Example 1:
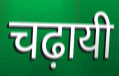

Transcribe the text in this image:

चढ़ायी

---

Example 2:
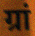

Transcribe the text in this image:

ग्रां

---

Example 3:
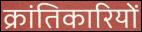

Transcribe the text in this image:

क्रांतिकारियों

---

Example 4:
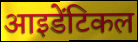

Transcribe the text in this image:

आइडेंटिकल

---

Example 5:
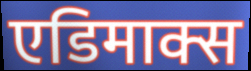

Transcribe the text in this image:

एडिमाक्स